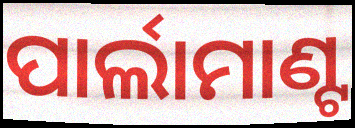
ପାର୍ଲାମାଣ୍ଟ